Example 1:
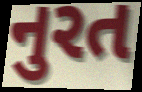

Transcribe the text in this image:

નુરત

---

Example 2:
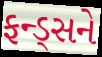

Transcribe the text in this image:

ફન્ડ્સને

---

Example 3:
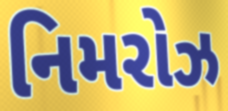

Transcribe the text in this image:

નિમરોઝ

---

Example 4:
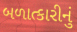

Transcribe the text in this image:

બળાત્કારીનું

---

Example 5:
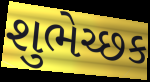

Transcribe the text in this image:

શુભેચ્છક